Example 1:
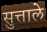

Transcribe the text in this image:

सुत्ताले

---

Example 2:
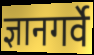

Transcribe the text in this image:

ज्ञानगर्वे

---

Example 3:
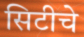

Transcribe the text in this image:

सिटीचे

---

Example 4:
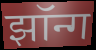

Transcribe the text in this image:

झॉन्ग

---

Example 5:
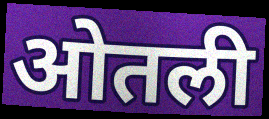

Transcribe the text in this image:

ओतली